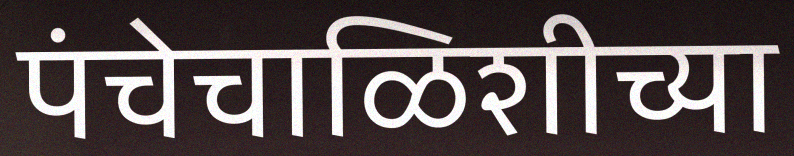
पंचेचाळिशीच्या